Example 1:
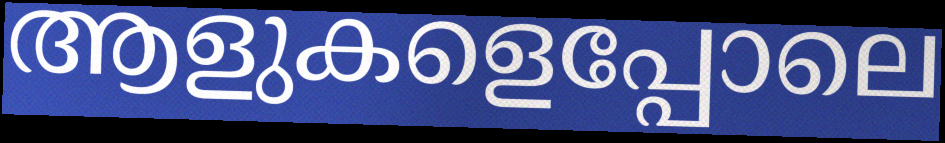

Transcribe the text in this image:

ആളുകളെപ്പോലെ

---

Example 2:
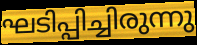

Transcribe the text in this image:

ഘടിപ്പിച്ചിരുന്നു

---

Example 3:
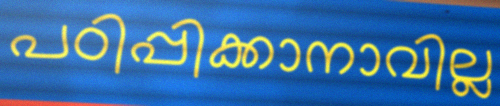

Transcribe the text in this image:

പഠിപ്പിക്കാനാവില്ല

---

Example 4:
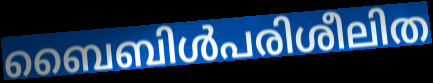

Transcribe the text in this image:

ബൈബിൾപരിശീലിത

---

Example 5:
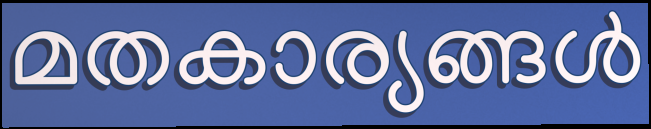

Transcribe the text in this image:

മതകാര്യങ്ങൾ